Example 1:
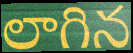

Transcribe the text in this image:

లాగిన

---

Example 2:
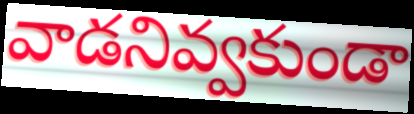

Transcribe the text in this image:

వాడనివ్వకుండా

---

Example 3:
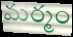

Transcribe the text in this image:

మర్మం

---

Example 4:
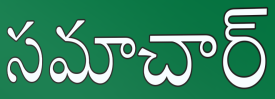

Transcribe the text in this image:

సమాచార్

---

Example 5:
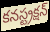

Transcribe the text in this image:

కనస్ట్రక్షన్